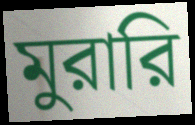
মুরারি